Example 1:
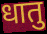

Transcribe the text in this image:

धातु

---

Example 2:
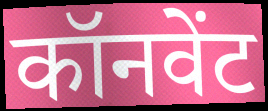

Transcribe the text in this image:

कॉनवेंट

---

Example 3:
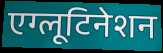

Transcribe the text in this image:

एग्लूटिनेशन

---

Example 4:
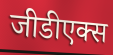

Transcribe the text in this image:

जीडीएक्स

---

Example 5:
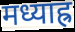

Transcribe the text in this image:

मध्याह्र